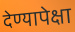
देण्यापेक्षा